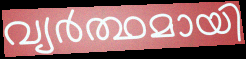
വ്യർത്ഥമായി